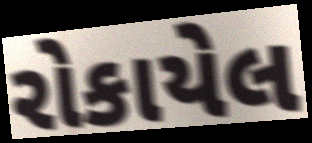
રોકાયેલ